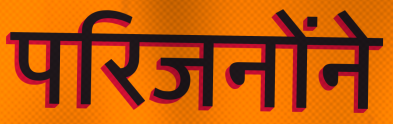
परिजनोंने